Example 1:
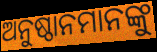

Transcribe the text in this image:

ଅନୁଷ୍ଠାନମାନଙ୍କୁ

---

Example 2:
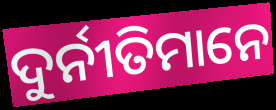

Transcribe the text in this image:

ଦୁର୍ନୀତିମାନେ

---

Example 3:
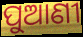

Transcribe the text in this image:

ପୁଆଣୀ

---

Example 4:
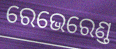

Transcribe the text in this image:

ରେଭେରେଣ୍ଡ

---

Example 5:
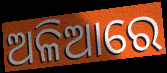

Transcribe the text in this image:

ଅଳିଆରେ